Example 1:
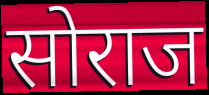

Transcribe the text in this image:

सोराज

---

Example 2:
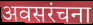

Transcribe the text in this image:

अवसरंचना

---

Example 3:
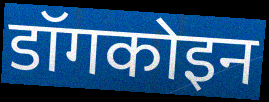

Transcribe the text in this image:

डॉगकोइन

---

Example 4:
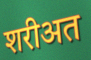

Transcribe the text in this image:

शरीअत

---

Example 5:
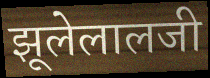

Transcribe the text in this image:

झूलेलालजी